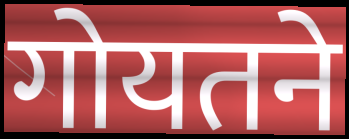
गोयतने